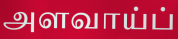
அளவாய்ப்